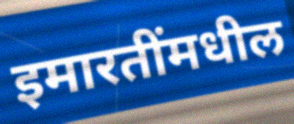
इमारतींमधील